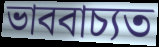
ভাববাচ্যত